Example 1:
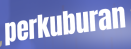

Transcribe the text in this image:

perkuburan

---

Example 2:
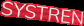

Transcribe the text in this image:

SYSTREN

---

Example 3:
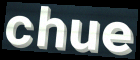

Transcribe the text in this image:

chue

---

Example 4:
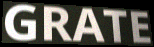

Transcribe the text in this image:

GRATE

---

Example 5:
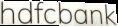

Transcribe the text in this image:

hdfcbank